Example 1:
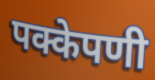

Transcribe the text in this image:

पक्केपणी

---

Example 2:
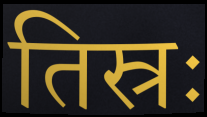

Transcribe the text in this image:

तिस्रः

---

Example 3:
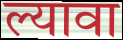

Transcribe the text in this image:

ल्यावा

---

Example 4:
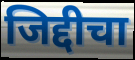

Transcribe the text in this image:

जिद्दीचा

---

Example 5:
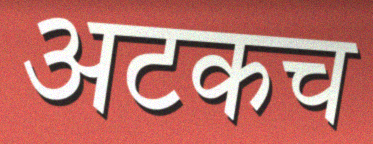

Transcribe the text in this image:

अटकच